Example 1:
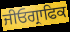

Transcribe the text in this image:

ਜੀਓਗ੍ਰਾਫਿਕ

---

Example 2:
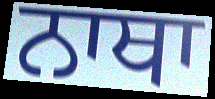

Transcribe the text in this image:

ਨਾਥਾ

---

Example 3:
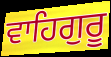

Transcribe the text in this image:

ਵਾਹਿਗੁਰੂ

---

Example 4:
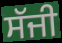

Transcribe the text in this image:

ਸੱਜੀ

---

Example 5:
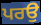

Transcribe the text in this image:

ਪਰਉ